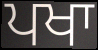
ਪਖਾ